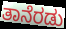
ತಾನೆರಡು